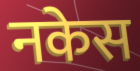
नकेस